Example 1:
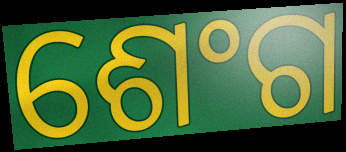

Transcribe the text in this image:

ଶେଂଗ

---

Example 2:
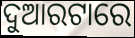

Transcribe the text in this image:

ଦୁଆରଟାରେ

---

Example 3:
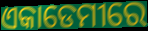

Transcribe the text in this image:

ଏକାଡେମୀରେ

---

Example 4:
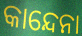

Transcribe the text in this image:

କାନ୍ଦେନା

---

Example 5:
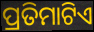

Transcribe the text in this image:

ପ୍ରତିମାଟିଏ